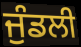
ਜੁੰਡਲੀ